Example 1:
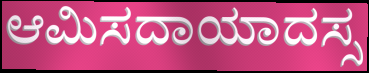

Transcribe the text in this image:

ಆಮಿಸದಾಯಾದಸ್ಸ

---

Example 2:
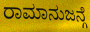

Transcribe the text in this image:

ರಾಮಾನುಜನ್ಗೆ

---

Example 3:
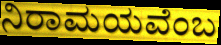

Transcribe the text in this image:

ನಿರಾಮಯವೆಂಬ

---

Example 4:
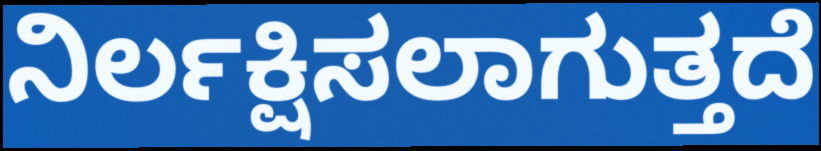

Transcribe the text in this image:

ನಿರ್ಲಕ್ಷಿಸಲಾಗುತ್ತದೆ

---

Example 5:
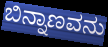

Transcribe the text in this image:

ಬಿನ್ನಾಣವನು